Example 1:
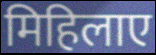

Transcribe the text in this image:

मिहिलाए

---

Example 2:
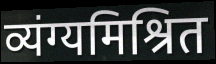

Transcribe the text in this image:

व्यंग्यमिश्रित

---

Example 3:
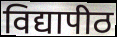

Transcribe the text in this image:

विद्यापीठ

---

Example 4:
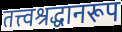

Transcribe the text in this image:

तत्त्वश्रद्धानरूप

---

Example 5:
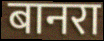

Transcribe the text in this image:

बानरा